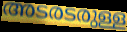
അടരടരുള്ള